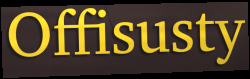
Offisusty